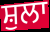
ਸ਼ੁਲਾ